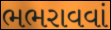
ભભરાવવાં